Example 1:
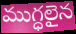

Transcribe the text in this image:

ముగ్ధలైన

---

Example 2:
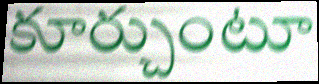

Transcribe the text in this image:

కూర్చుంటూ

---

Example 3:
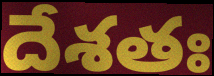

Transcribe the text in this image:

దేశతః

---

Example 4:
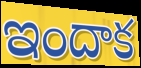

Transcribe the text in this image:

ఇందాక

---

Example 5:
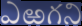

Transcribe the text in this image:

ఎఱగని